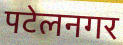
पटेलनगर